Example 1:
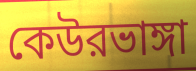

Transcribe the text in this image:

কেউরভাঙ্গা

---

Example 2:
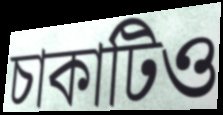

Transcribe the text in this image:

চাকাটিও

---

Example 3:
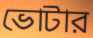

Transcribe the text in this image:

ভোটার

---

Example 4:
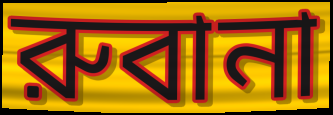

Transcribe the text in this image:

রুবানা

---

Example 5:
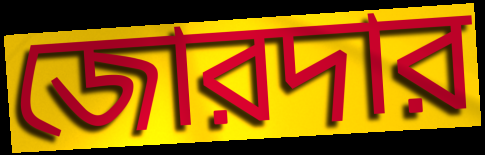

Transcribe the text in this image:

জোরদার